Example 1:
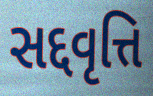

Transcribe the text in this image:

સદ્દવૃત્તિ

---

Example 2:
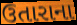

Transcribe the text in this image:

ઉતારાના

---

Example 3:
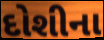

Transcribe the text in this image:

દોશીના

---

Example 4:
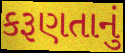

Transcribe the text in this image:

કરૂણતાનું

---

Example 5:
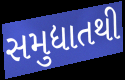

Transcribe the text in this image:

સમુદ્યાતથી